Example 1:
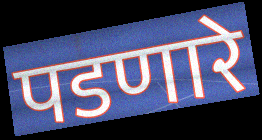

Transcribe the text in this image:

पडणारे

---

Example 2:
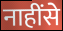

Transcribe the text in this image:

नाहींसे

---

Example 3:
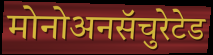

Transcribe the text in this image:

मोनोअनसॅचुरेटेड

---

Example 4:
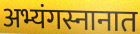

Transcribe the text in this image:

अभ्यंगस्नानात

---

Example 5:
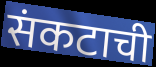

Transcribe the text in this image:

संकटाची